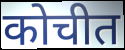
कोचीत